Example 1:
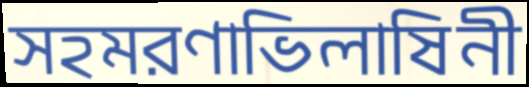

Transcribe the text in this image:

সহমরণাভিলাষিনী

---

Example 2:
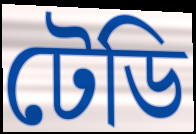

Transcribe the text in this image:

টেডি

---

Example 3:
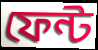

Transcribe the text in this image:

ফেন্ট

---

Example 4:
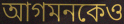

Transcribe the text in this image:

আগমনকেও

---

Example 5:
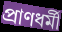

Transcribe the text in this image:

প্রাণধর্মী